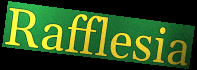
Rafflesia